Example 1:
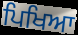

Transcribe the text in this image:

ਪਿਖਿਆ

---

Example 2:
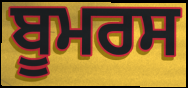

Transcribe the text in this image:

ਬੂਮਰਸ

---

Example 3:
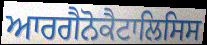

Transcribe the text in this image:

ਆਰਗੈਨੋਕੈਟਾਲਿਸਿਸ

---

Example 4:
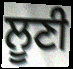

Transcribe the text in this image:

ਲੂਣੀ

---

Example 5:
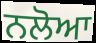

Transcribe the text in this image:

ਨਲੋਆ